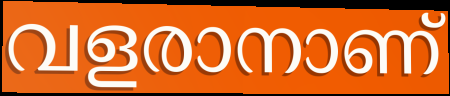
വളരാനാണ്